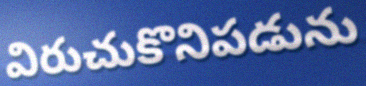
విరుచుకొనిపడును